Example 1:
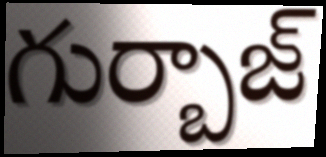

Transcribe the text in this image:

గుర్బాజ్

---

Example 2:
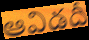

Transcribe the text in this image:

ఆవిడదీ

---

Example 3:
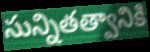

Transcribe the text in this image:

సున్నితత్వానికి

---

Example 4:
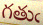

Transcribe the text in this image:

గతుఁ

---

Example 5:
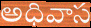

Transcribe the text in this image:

అధివాస